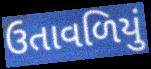
ઉતાવળિયું